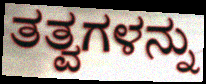
ತತ್ವಗಳನ್ನು